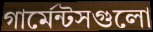
গার্মেন্টসগুলো